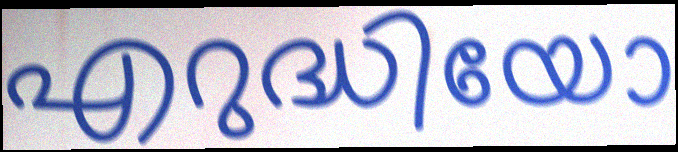
എറുദ്ധിയോ